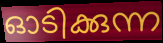
ഓടിക്കുന്ന